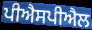
ਪੀਐਸਪੀਐਲ